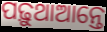
ପଢ଼ୁଥାଆନ୍ତେ